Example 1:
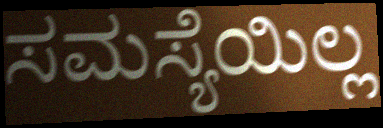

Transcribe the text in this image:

ಸಮಸ್ಯೆಯಿಲ್ಲ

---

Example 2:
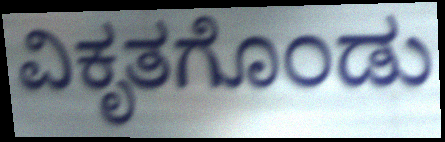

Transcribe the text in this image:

ವಿಕೃತಗೊಂಡು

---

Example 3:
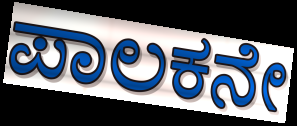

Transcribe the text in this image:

ಪಾಲಕನೇ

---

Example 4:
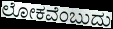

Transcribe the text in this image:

ಲೋಕವೆಂಬುದು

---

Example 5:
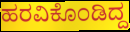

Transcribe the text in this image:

ಹರವಿಕೊಂಡಿದ್ದ